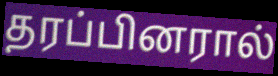
தரப்பினரால்